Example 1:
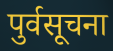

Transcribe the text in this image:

पुर्वसूचना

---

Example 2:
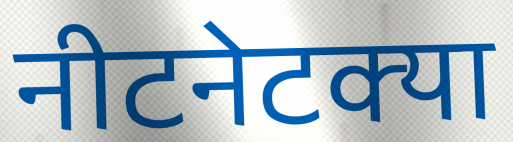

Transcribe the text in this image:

नीटनेटक्‍या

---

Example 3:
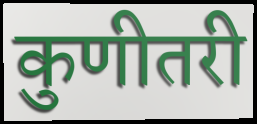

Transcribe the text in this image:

कुणीतरी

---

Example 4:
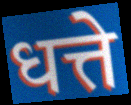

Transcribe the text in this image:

धत्ते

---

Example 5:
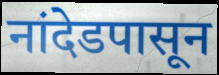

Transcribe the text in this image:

नांदेडपासून